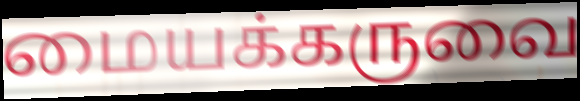
மையக்கருவை